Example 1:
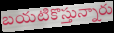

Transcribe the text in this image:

బయటికొస్తున్నారు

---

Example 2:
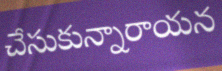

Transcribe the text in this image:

చేసుకున్నారాయన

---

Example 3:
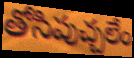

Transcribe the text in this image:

తోసిపుచ్చలేం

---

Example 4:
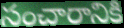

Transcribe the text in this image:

సంచారానికి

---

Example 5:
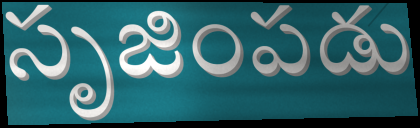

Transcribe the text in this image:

సృజింపడు